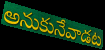
అనుకునేవాడట